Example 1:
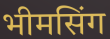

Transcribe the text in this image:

भीमसिंग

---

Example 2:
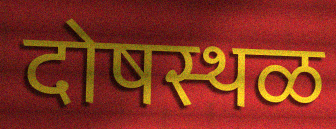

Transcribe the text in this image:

दोषस्थळ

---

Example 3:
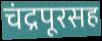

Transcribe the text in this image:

चंद्रपूरसह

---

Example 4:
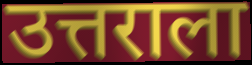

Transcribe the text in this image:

उत्तराला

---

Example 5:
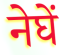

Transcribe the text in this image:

नेघें